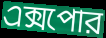
এক্সপোর